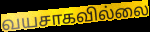
வயசாகவில்லை